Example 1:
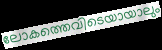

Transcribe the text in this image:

ലോകത്തെവിടെയായാലും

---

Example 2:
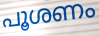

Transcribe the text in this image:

പൂശണം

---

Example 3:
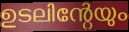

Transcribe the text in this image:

ഉടലിന്റേയും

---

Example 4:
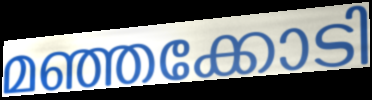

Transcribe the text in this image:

മഞ്ഞക്കോടി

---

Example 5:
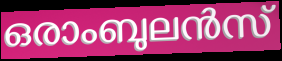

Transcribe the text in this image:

ഒരാംബുലൻസ്